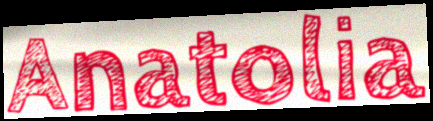
Anatolia